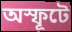
অস্ফূটে